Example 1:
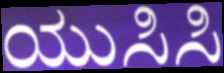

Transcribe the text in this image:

ಯುಸಿಸಿ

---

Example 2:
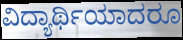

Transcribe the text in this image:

ವಿದ್ಯಾರ್ಥಿಯಾದರೂ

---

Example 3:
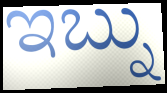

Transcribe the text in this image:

ಇಬ್ನು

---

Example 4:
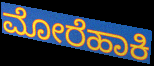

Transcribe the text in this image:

ಮೋರೆಹಾಕಿ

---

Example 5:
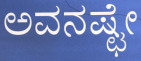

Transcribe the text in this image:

ಅವನಷ್ಟೇ